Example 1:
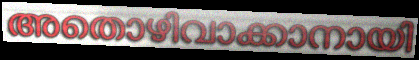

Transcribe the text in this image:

അതൊഴിവാക്കാനായി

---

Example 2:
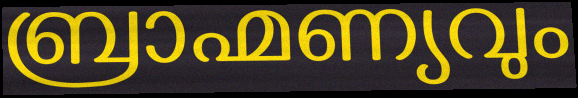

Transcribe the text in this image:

ബ്രാഹ്മണ്യവും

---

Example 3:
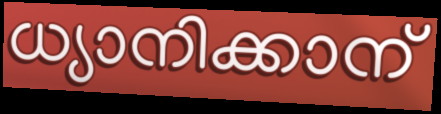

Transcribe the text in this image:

ധ്യാനിക്കാന്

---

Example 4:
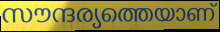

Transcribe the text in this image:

സൗന്ദര്യത്തെയാണ്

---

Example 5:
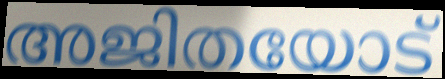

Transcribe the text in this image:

അജിതയോട്